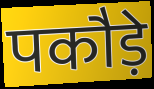
पकौड़े